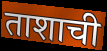
ताशाची